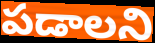
పడాలని